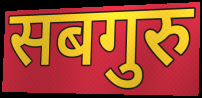
सबगुरु